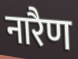
नारैण